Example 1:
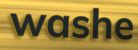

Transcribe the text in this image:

washe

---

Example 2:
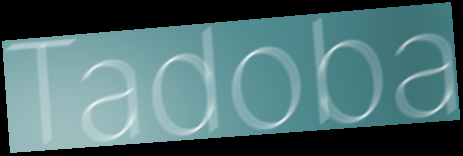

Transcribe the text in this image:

Tadoba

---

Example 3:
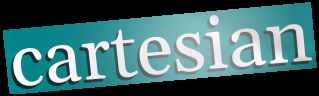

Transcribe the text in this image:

cartesian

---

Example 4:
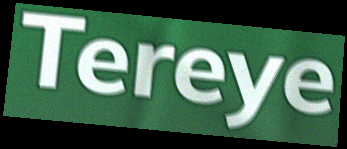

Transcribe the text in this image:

Tereye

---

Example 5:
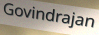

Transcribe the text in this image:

Govindrajan